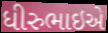
ધીરુભાઇએ